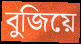
বুজিয়ে